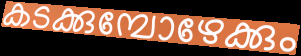
കടക്കുമ്പോഴേക്കും